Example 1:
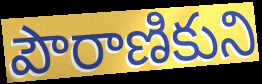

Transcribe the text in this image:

పౌరాణికుని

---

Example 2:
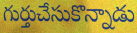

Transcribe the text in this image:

గుర్తుచేసుకొన్నాడు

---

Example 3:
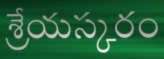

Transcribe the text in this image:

శ్రేయస్కరం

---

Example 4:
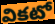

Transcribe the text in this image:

వికటో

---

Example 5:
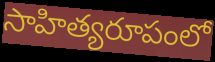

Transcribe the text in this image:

సాహిత్యరూపంలో